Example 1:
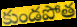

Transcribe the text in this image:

కుండపోత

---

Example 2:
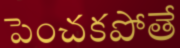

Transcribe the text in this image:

పెంచకపోతే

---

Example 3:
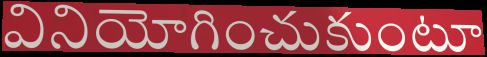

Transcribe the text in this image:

వినియోగించుకుంటూ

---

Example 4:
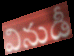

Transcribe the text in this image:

వినుడీ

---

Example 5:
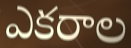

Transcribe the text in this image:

ఎకరాల